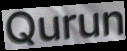
Qurun